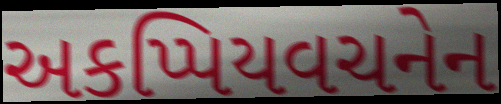
અકપ્પિયવચનેન